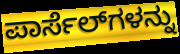
ಪಾರ್ಸೆಲ್‌ಗಳನ್ನು